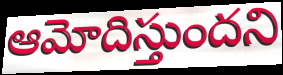
ఆమోదిస్తుందని